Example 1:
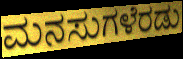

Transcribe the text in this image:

ಮನಸುಗಳೆರಡು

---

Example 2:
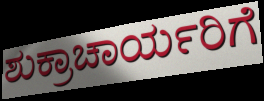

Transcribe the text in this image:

ಶುಕ್ರಾಚಾರ್ಯರಿಗೆ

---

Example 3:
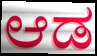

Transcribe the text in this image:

ಆಡ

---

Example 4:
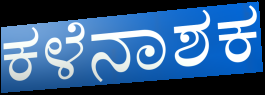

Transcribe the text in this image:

ಕಳೆನಾಶಕ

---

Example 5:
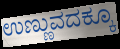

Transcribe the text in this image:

ಉಣ್ಣುವದಕ್ಕೂ